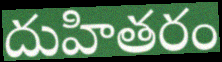
దుహితరం